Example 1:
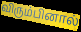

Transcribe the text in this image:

விரும்பினால்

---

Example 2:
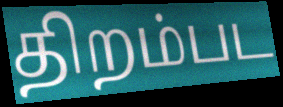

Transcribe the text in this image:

திறம்பட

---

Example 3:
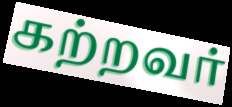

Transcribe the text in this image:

கற்றவர்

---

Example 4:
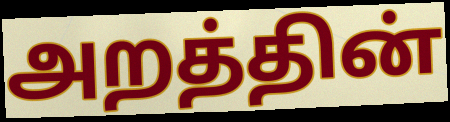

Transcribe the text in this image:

அறத்தின்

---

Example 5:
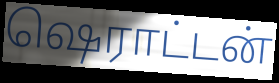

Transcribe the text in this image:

ஷெராட்டன்